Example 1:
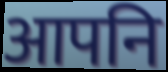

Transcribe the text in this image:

आपनि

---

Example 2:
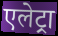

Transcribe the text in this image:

एलेट्रा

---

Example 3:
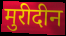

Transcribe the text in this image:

मुरीदीन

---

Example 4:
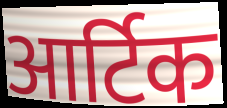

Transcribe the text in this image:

आर्टिक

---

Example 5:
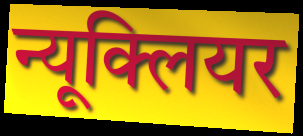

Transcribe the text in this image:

न्‍यूक्‍लियर